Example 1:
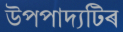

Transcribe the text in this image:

উপপাদ্যটিৰ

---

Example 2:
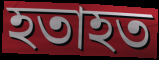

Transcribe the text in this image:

হতাহত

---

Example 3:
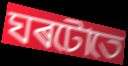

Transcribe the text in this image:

ঘৰটোতে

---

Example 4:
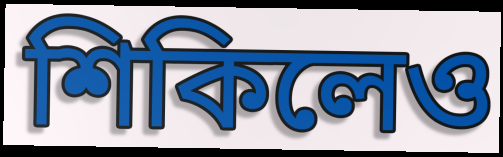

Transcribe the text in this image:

শিকিলেও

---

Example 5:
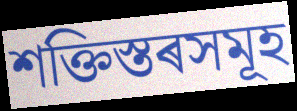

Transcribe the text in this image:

শক্তিস্তৰসমূহ